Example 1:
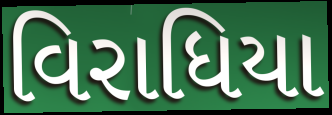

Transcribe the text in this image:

વિરાધિયા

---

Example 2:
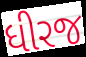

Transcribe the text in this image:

ધીરજ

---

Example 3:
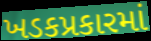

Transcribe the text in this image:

ખડકપ્રકારમાં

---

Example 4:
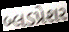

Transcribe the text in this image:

બ્લડપ્રેશર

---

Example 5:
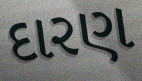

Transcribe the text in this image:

દારણ